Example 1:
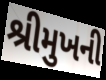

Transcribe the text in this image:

શ્રીમુખની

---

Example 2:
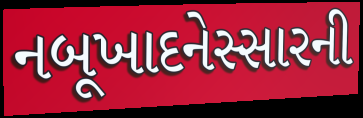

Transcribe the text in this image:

નબૂખાદનેસ્સારની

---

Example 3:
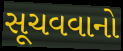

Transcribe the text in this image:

સૂચવવાનો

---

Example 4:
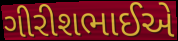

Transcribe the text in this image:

ગીરીશભાઈએ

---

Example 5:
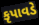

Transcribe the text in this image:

કૃપાવડે